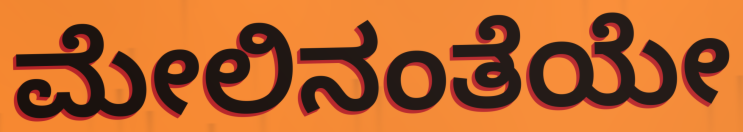
ಮೇಲಿನಂತೆಯೇ